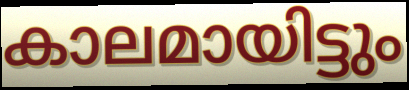
കാലമായിട്ടും